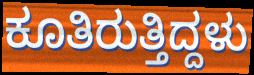
ಕೂತಿರುತ್ತಿದ್ದಳು